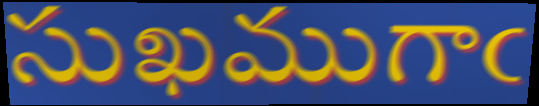
సుఖముగాఁ